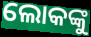
ଲୋକଙ୍କୁ